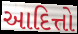
આદિત્તો